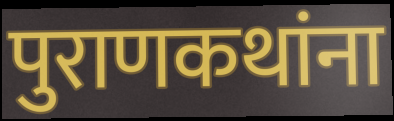
पुराणकथांना